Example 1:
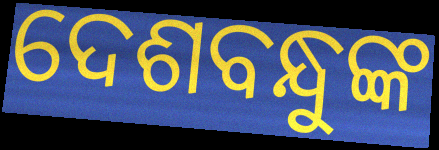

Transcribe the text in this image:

ଦେଶବନ୍ଧୁଙ୍କ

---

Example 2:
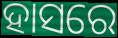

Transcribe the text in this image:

ହାସରେ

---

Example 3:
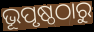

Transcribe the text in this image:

ଭୂପୃଷ୍ଠଠାରୁ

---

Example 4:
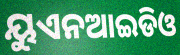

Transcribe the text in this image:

ୟୁଏନଆଇଡିଓ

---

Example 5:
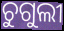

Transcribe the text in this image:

ଚୁଗୁଲୀ